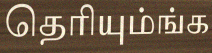
தெரியும்ங்க